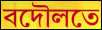
বদৌলতে